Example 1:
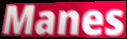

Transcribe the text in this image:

Manes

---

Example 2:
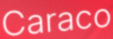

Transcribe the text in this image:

Caraco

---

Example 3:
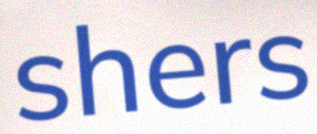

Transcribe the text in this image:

shers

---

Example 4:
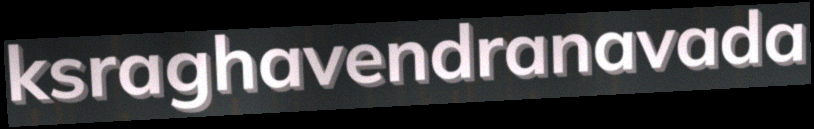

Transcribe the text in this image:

ksraghavendranavada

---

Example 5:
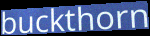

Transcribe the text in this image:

buckthorn